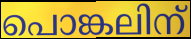
പൊങ്കലിന്